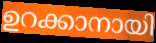
ഉറക്കാനായി